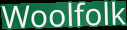
Woolfolk